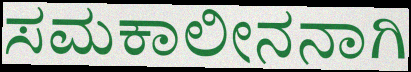
ಸಮಕಾಲೀನನಾಗಿ